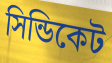
সিন্ডিকেট